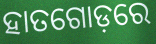
ହାତଗୋଡ଼ରେ